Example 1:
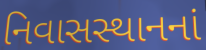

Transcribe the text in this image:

નિવાસસ્થાનનાં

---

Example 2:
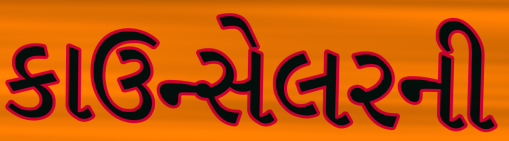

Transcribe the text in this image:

કાઉન્સેલરની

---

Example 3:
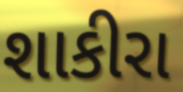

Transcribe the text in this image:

શાકીરા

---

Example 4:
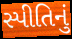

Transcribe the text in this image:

સ્પીતિનું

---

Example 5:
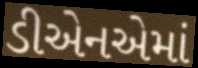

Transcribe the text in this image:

ડીએનએમાં